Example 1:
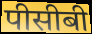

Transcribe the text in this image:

पीसीबी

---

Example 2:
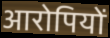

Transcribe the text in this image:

आरोपियों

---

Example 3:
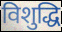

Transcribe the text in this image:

विशुद्धि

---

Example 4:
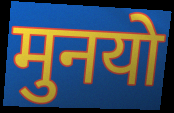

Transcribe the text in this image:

मुनयो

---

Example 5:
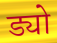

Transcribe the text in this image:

ड्यो